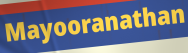
Mayooranathan